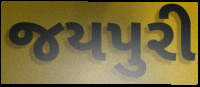
જયપુરી